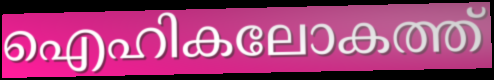
ഐഹികലോകത്ത്